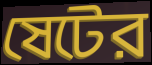
ষেটের